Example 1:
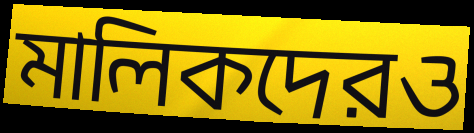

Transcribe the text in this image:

মালিকদেরও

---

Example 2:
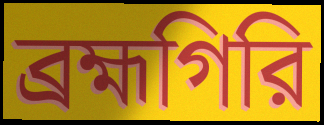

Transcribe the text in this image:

ব্রহ্মগিরি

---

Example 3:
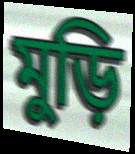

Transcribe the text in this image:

মুড়ি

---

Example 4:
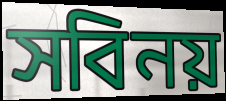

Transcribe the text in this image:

সবিনয়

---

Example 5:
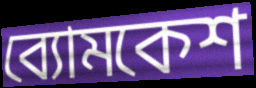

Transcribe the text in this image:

ব্যোমকেশ